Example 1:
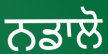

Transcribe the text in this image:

ਨਡਾਲੋ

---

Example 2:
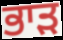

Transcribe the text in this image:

ਭਾੜ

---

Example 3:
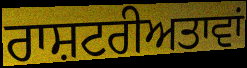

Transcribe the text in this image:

ਰਾਸ਼ਟਰੀਅਤਾਵਾਂ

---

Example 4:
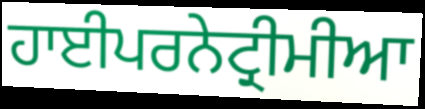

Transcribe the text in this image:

ਹਾਈਪਰਨੇਟ੍ਰੀਮੀਆ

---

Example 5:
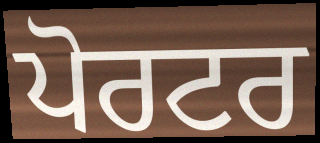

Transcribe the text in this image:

ਪੋਰਟਰ